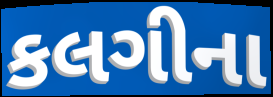
કલગીના